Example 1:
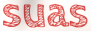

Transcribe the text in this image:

suas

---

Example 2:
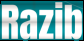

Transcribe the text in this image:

Razib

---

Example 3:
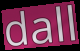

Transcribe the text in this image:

dall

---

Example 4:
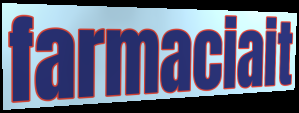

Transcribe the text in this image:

farmaciait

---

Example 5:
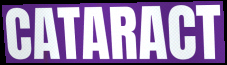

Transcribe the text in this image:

CATARACT